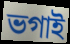
ভগাই